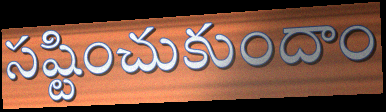
సష్టించుకుందాం